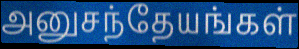
அனுசந்தேயங்கள்